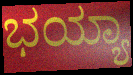
ಭಯ್ಯಾ